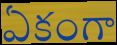
ఏకంగా